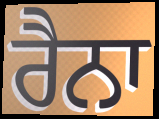
ਰੈਨਾ